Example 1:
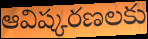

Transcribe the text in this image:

ఆవిష్కరణలకు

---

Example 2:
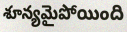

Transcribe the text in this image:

శూన్యమైపోయింది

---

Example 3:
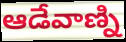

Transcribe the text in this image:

ఆడేవాణ్ని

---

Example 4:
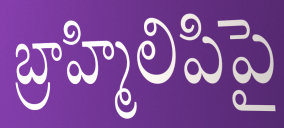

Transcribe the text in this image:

బ్రాహ్మిలిపిపై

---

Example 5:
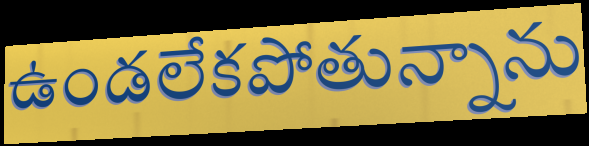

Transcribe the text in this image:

ఉండలేకపోతున్నాను